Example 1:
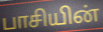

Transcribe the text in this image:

பாசியின்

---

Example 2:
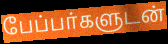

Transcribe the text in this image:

பேப்பர்களுடன்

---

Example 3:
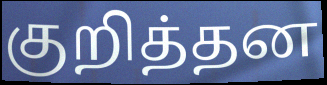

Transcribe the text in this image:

குறித்தன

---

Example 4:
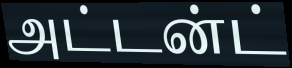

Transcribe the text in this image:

அட்டன்ட்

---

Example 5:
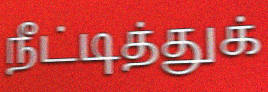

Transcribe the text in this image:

நீட்டித்துக்